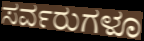
ಸರ್ವರುಗಳೂ